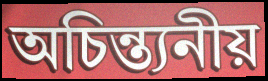
অচিন্ত্যনীয়